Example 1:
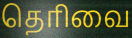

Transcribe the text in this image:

தெரிவை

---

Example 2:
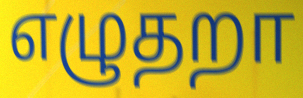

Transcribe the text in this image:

எழுதறா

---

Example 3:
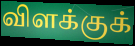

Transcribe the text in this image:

விளக்குக்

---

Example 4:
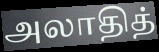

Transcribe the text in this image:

அலாதித்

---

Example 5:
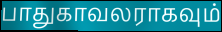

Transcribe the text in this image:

பாதுகாவலராகவும்